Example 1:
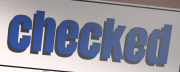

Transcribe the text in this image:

checked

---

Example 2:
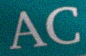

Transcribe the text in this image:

AC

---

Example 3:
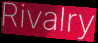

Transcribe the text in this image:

Rivalry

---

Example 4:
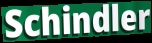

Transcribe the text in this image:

Schindler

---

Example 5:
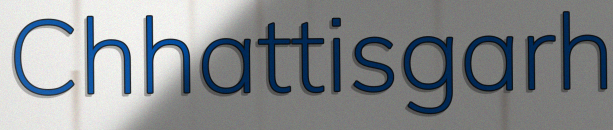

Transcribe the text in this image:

Chhattisgarh